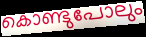
കൊണ്ടുപോലും